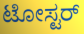
ಟೋಸ್ಟರ್